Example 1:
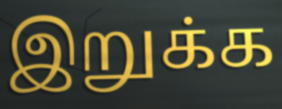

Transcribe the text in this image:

இறுக்க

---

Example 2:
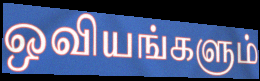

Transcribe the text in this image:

ஒவியங்களும்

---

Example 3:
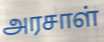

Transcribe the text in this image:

அரசாள்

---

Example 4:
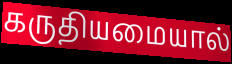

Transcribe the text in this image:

கருதியமையால்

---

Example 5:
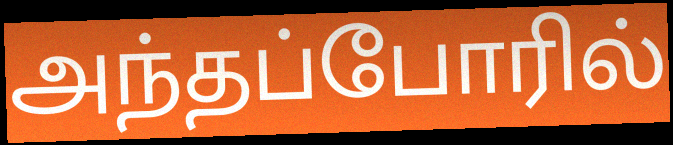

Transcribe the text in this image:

அந்தப்போரில்